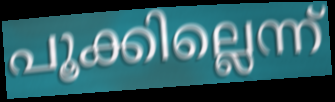
പൂക്കില്ലെന്ന്